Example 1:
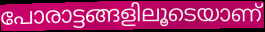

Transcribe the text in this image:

പോരാട്ടങ്ങളിലൂടെയാണ്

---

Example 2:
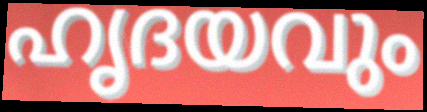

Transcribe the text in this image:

ഹൃദയവും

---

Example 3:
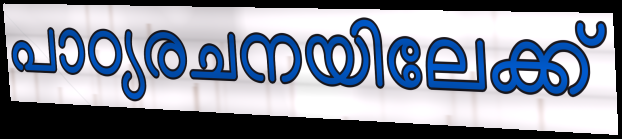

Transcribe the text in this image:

പാഠ്യരചനയിലേക്ക്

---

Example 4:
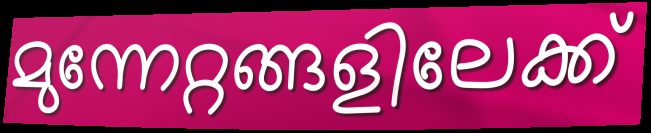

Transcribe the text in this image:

മുന്നേറ്റങ്ങളിലേക്ക്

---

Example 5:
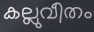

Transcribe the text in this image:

കല്ലുവീതം